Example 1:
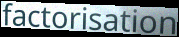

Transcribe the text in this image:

factorisation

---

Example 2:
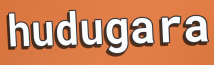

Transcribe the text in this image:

hudugara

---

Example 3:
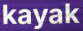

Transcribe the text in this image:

kayak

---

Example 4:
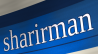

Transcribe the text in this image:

sharirman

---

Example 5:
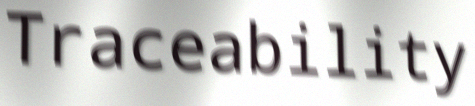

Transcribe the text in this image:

Traceability